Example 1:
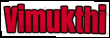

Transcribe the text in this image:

Vimukthi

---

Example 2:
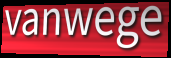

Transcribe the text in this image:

vanwege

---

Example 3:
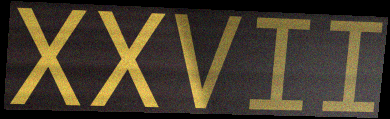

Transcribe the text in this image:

XXVII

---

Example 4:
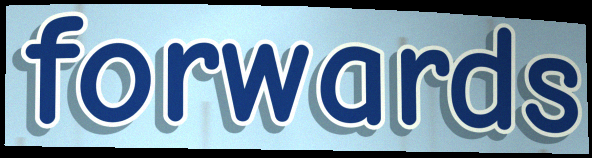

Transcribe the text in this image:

forwards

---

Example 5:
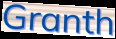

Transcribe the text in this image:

Granth